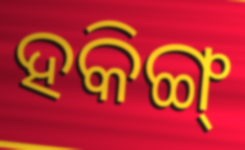
ହକିଙ୍ଗ୍